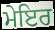
ਮੇਇਰ